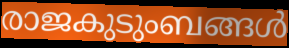
രാജകുടുംബങ്ങൾ